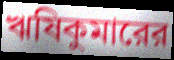
ঋষিকুমারের